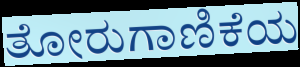
ತೋರುಗಾಣಿಕೆಯ